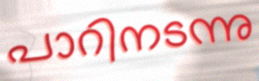
പാറിനടന്നു